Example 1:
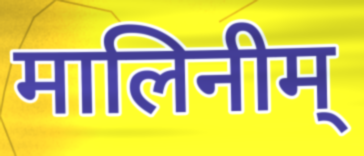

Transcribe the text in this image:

मालिनीम्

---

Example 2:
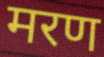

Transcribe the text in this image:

मरण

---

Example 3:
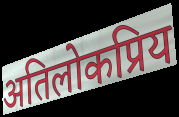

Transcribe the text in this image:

अतिलोकप्रिय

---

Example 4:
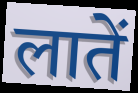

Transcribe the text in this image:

लातें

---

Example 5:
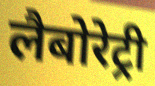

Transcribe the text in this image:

लैबोरेट्री